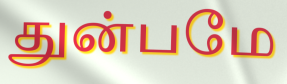
துன்பமே